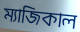
ম্যাজিকাল